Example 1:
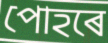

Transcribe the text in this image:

পোহৰে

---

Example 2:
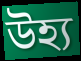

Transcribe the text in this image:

উহ্য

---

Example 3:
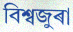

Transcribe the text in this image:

বিশ্বজুৰা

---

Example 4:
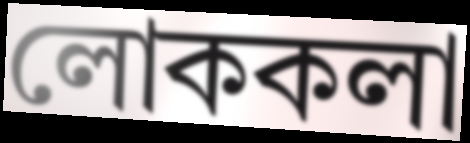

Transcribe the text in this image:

লোককলা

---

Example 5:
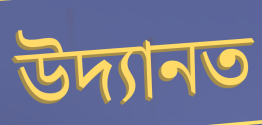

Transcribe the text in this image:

উদ্যানত